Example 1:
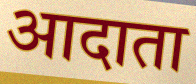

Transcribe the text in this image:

आदाता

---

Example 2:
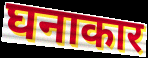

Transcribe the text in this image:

घनाकार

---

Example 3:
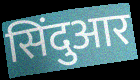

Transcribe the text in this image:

सिंदुआर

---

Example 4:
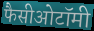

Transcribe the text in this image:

फैसीओटॉमी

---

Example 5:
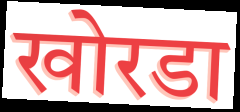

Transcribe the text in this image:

खोरडा